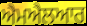
ਐਮਐਲਆਰ